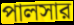
পালসার